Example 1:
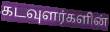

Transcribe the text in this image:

கடவுளர்களின்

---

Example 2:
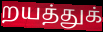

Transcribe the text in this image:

றயத்துக்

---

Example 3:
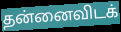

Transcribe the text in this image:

தன்னைவிடக்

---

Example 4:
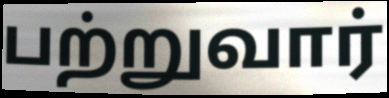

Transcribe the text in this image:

பற்றுவார்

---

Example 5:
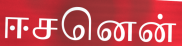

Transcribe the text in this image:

ஈசனென்